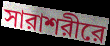
সারাশরীরে